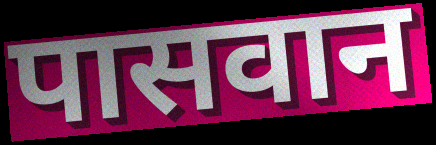
पासवान